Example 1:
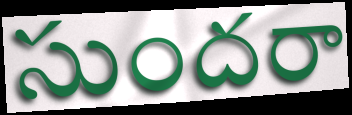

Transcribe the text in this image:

సుందరా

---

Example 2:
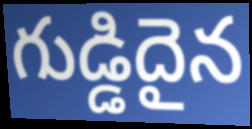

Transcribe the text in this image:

గుడ్డిదైన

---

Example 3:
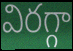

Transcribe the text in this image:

విరగ్గా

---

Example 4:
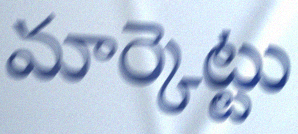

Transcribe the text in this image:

మార్కెట్టు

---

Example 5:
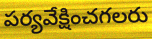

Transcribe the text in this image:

పర్యవేక్షించగలరు